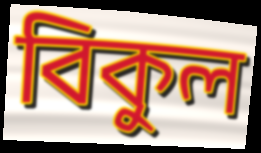
বিকুল